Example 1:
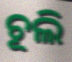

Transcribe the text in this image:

ଚୂଲି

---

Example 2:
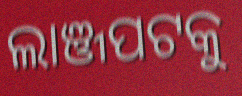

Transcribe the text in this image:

ଲାଞ୍ଜପଟକୁ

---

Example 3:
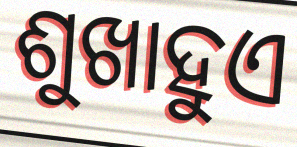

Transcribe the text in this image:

ଶୁଖାହୁଏ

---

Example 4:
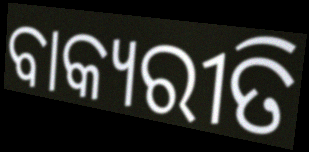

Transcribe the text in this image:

ବାକ୍ୟରୀତି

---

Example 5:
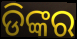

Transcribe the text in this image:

ଡିଙ୍କର